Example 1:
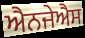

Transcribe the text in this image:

ਐਨਜੇਐਸ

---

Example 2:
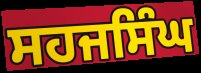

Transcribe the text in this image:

ਸਹਜਸਿੰਘ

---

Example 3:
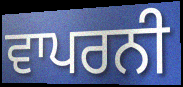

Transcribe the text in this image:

ਵਾਪਰਨੀ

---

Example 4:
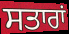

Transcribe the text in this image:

ਸਤਾਰਾਂ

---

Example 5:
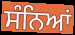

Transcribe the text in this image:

ਸੰਨਿਆਂ